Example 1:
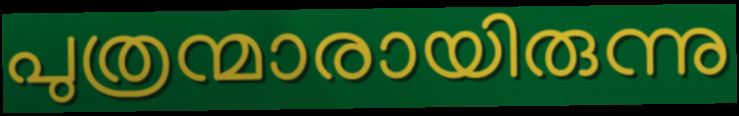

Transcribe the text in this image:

പുത്രന്മാരായിരുന്നു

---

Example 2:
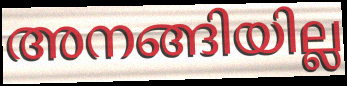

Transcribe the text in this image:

അനങ്ങിയില്ല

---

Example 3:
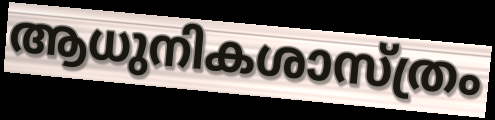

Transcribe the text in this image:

ആധുനികശാസ്ത്രം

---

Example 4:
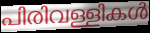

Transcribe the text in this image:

പിരിവള്ളികൾ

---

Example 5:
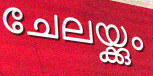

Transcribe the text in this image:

ചേലയ്ക്കും